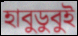
হাবুডুবুই